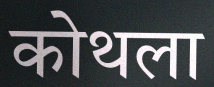
कोथला